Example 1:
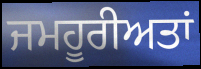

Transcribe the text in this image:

ਜਮਹੂਰੀਅਤਾਂ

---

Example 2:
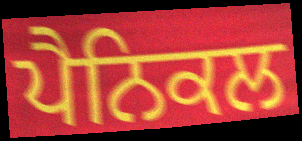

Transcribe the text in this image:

ਪੈਨਿਕਲ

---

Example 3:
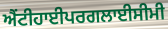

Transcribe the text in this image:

ਐਂਟੀਹਾਈਪਰਗਲਾਈਸੀਮੀ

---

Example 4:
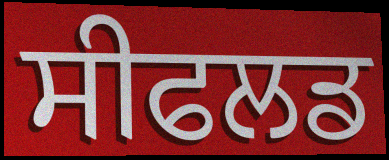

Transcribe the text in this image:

ਸੀਫਲਡ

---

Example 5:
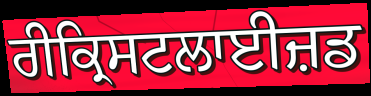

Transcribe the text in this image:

ਰੀਕ੍ਰਿਸਟਲਾਈਜ਼ਡ